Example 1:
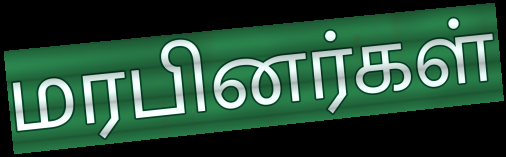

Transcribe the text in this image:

மரபினர்கள்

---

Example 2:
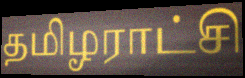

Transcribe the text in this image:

தமிழராட்சி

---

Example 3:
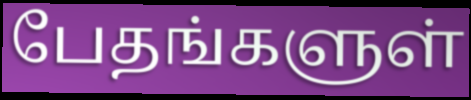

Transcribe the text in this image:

பேதங்களுள்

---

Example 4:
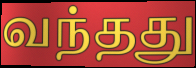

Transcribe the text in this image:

வந்தது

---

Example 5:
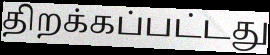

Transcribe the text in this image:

திறக்கப்பட்டது